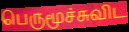
பெருமூச்சுவிட